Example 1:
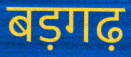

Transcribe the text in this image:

बड़गढ़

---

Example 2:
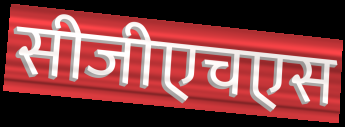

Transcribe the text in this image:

सीजीएचएस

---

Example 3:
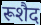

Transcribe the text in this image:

रूशैद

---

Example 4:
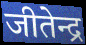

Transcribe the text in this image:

जीतेन्द्र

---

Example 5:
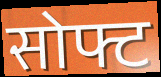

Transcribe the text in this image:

सोफ्ट